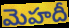
మెహదీ